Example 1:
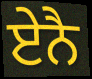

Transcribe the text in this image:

ਏਨੈ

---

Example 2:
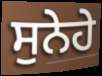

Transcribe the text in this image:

ਸੁਨੇਹੇ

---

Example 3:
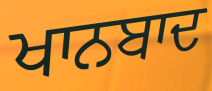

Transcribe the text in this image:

ਖਾਨਬਾਦ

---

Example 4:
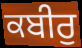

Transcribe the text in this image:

ਕਬੀਰੁ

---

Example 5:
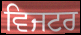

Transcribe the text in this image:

ਵਿਜਟਰ